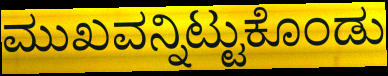
ಮುಖವನ್ನಿಟ್ಟುಕೊಂಡು